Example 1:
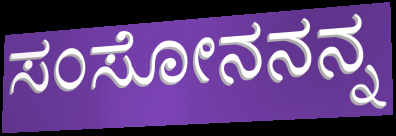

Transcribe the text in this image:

ಸಂಸೋನನನ್ನ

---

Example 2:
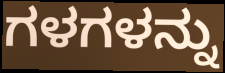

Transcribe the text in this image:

ಗಳಗಳನ್ನು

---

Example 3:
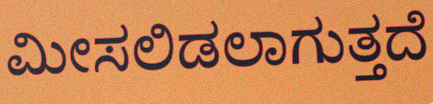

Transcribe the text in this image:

ಮೀಸಲಿಡಲಾಗುತ್ತದೆ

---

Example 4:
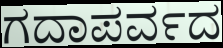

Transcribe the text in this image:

ಗದಾಪರ್ವದ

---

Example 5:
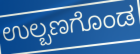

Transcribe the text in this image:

ಉಲ್ಬಣಗೊಂಡ